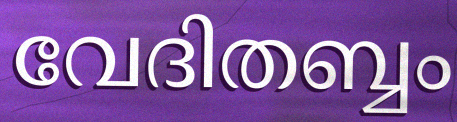
വേദിതബ്ബം